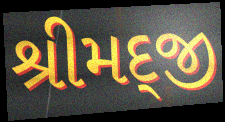
શ્રીમદ્જી